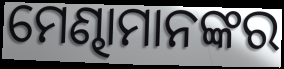
ମେଣ୍ଢାମାନଙ୍କର